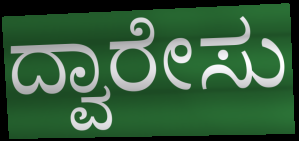
ದ್ವಾರೇಸು